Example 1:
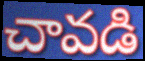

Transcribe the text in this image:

చావడి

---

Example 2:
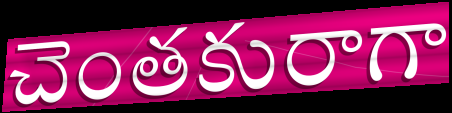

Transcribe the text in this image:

చెంతకురాగా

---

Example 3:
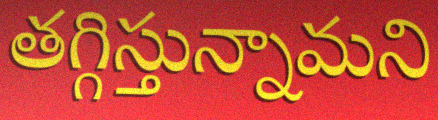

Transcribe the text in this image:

తగ్గిస్తున్నామని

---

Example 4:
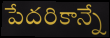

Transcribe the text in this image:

పేదరికాన్నే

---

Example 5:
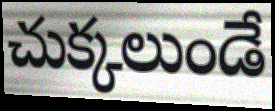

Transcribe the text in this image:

చుక్కలుండే